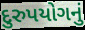
દુરુપયોગનું